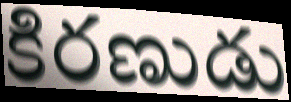
కిరణుడు